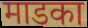
माडका